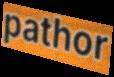
pathor